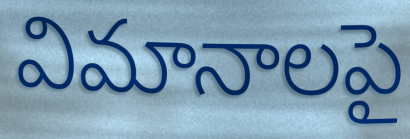
విమానాలపై